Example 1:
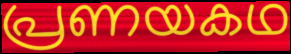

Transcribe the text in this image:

പ്രണയകഥ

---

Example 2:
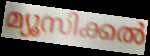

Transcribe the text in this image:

മ്യൂസിക്കൽ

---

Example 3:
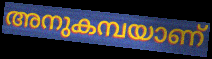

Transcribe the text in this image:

അനുകമ്പയാണ്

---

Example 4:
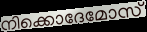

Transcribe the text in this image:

നിക്കൊദേമോസ്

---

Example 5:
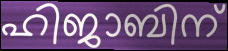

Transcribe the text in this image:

ഹിജാബിന്